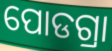
ପୋଡଗ୍ରା